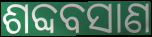
ଶବ୍ଦବସାଣ